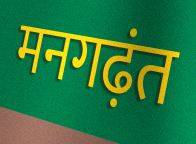
मनगढ़ंत